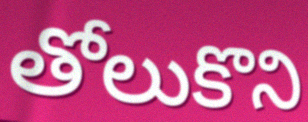
తోలుకొని